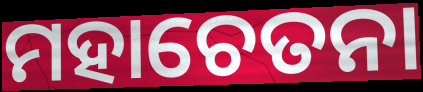
ମହାଚେତନା